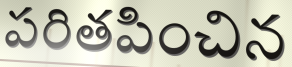
పరితపించిన